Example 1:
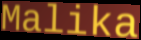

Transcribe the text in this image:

Malika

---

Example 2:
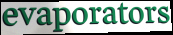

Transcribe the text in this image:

evaporators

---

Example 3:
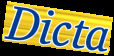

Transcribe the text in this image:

Dicta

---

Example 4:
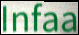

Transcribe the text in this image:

Infaa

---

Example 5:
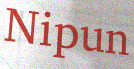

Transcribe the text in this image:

Nipun